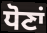
ਧੋਣਾਂ